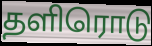
தளிரொடு